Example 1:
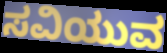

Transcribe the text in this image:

ಸವಿಯುವ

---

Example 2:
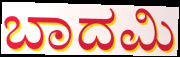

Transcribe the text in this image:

ಬಾದಮಿ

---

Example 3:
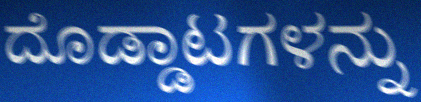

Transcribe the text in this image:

ದೊಡ್ಡಾಟಗಳನ್ನು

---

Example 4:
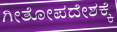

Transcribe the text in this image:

ಗೀತೋಪದೇಶಕ್ಕೆ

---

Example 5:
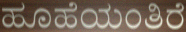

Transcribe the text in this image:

ಹೂಹೆಯಂತಿರೆ